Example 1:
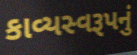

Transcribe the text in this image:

કાવ્યસ્વરૂપનું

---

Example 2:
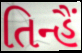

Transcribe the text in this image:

તિન્હૈં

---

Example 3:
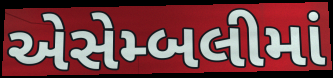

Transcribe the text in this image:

એસેમ્બલીમાં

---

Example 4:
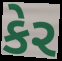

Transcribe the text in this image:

કેર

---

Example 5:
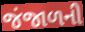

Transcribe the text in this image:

જંજાળની